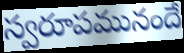
స్వరూపమునందే